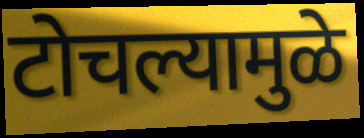
टोचल्यामुळे